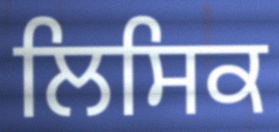
ਲਿਸਿਕ